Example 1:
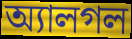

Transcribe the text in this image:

অ্যালগল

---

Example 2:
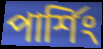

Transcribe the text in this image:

পার্শিং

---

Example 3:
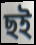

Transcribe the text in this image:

ছই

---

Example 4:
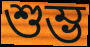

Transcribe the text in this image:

শুম্ভ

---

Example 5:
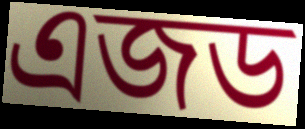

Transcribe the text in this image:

এজড